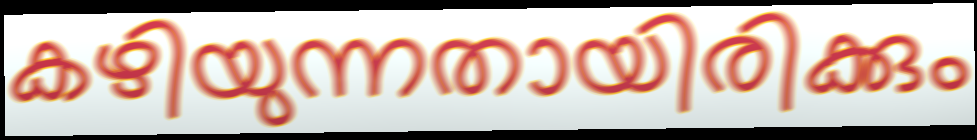
കഴിയുന്നതായിരിക്കും